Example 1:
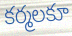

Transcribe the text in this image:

కర్మలకూ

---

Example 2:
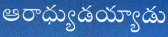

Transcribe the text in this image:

ఆరాధ్యుడయ్యాడు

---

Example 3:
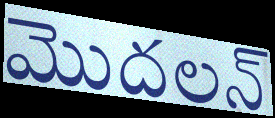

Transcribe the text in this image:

మొదలన్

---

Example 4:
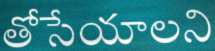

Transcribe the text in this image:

తోసేయాలని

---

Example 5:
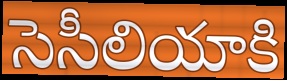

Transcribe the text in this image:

సెసీలియాకి